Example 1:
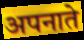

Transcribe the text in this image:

अपनाते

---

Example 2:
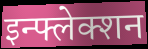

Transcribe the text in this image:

इन्फ्लेक्शन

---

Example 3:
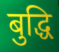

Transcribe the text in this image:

बुद्धि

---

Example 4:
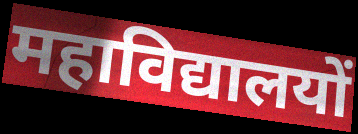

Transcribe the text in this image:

महाविद्यालयों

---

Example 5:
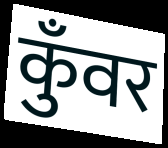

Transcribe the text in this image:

कुँवर